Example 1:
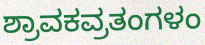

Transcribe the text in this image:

ಶ್ರಾವಕವ್ರತಂಗಳಂ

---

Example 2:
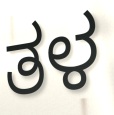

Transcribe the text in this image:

ತಳ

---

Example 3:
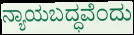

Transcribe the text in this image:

ನ್ಯಾಯಬದ್ಧವೆಂದು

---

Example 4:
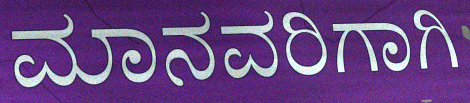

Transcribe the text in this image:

ಮಾನವರಿಗಾಗಿ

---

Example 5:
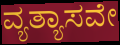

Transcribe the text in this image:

ವ್ಯತ್ಯಾಸವೇ